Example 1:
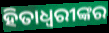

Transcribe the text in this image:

ହିତାଧ୍ଵରୀଙ୍କର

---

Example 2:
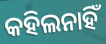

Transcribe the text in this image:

କହିଲନାହିଁ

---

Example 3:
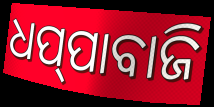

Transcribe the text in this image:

ଧପ୍‌ପାବାଜି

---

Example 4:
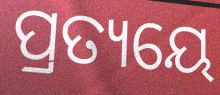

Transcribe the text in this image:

ପ୍ରତ୍ୟୟେ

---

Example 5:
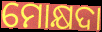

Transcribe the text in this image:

ମୋକ୍ଷଦା